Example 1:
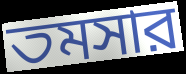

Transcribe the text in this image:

তমসার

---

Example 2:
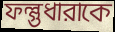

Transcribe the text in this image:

ফল্গুধারাকে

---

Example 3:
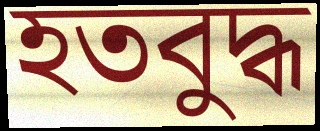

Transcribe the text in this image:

হতবুদ্ধ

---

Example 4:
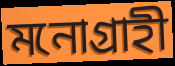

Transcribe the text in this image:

মনোগ্রাহী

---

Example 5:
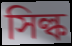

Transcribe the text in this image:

সিল্ক